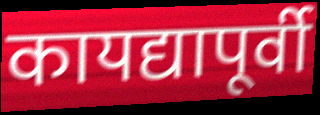
कायद्यापूर्वी